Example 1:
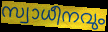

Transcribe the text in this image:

സ്വാധീനവും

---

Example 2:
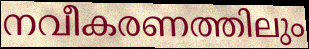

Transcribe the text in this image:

നവീകരണത്തിലും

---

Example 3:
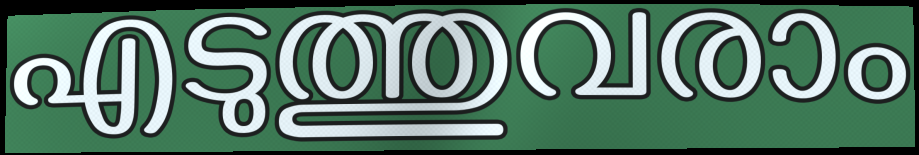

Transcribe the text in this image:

എടുത്തുവരാം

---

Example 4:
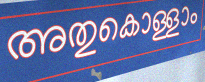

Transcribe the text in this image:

അതുകൊള്ളാം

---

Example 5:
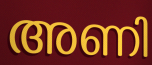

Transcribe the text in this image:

അണി